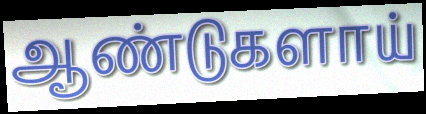
ஆண்டுகளாய்